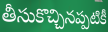
తీసుకొచ్చినప్పటికీ